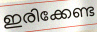
ഇരിക്കേണ്ട